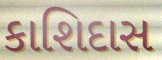
કાશિદાસ